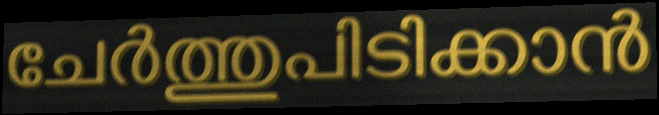
ചേർത്തുപിടിക്കാൻ